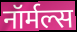
नॉर्मल्स